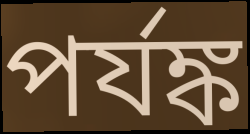
পর্যঙ্ক